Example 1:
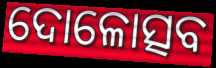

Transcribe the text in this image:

ଦୋଳୋତ୍ସବ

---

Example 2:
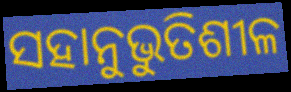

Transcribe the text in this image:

ସହାନୁଭୁତିଶୀଳ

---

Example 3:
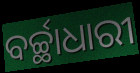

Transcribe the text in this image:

ବର୍ଚ୍ଛାଧାରୀ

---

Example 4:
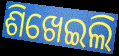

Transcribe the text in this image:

ଶିଖେଇଲି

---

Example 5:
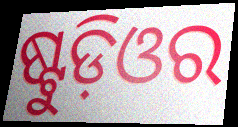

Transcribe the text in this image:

ଷ୍ଟୁଡ଼ିଓର